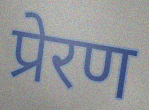
प्रेरण